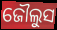
ଜୌଲୁସ